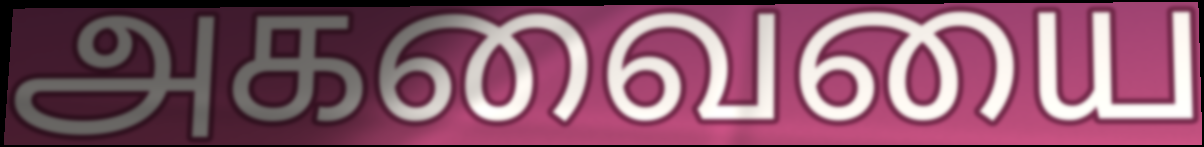
அகவையை